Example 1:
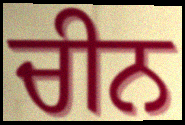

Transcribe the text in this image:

ਚੀਨ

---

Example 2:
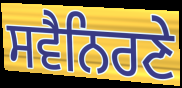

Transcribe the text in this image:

ਸਵੈਨਿਰਣੇ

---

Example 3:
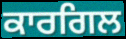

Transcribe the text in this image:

ਕਾਰਗਿਲ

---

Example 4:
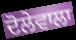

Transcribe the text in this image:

ਦੋਲੇਵਾਲਾ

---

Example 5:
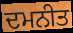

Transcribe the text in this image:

ਦਮਨੀਤ